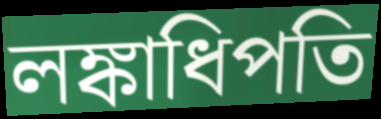
লঙ্কাধিপতি